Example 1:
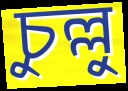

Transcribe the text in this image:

চুল্লু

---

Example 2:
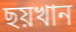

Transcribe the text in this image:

ছয়খান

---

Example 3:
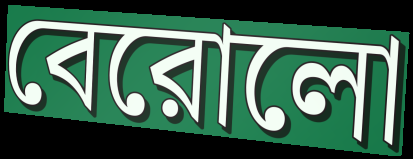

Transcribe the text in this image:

বেরোলো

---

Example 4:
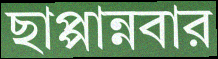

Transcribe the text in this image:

ছাপ্পান্নবার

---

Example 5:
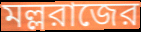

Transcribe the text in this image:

মল্লরাজের